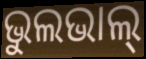
ଭୁଲଭାଲ୍